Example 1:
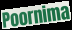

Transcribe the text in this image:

Poornima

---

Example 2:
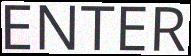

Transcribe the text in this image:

ENTER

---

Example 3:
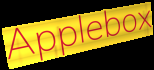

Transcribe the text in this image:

Applebox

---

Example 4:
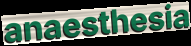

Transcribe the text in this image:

anaesthesia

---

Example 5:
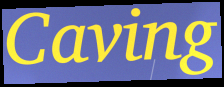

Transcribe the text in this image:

Caving